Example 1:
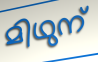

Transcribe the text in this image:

മിഥുന്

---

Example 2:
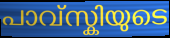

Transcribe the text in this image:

പാവ്സ്കിയുടെ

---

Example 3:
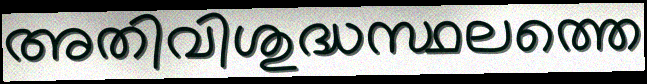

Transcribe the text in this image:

അതിവിശുദ്ധസ്ഥലത്തെ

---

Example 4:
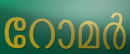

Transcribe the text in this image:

റോമർ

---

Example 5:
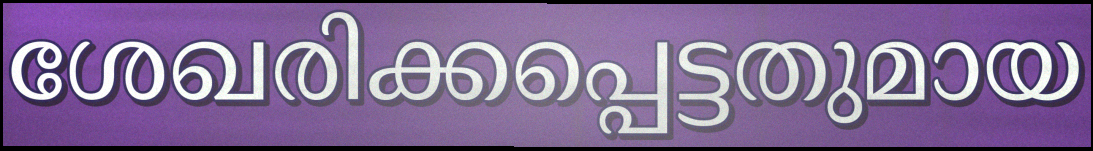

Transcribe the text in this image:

ശേഖരിക്കപ്പെട്ടതുമായ